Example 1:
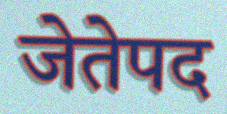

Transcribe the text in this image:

जेतेपद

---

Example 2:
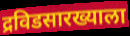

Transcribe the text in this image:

द्रविडसारख्याला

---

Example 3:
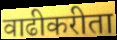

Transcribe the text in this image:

वाढीकरीता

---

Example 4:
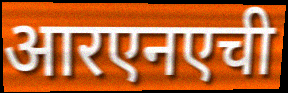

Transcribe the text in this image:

आरएनएची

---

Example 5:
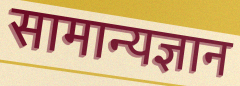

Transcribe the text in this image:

सामान्यज्ञान